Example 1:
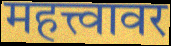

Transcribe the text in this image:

महत्त्वावर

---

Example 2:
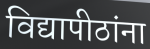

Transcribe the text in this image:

विद्यापीठांना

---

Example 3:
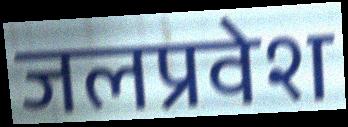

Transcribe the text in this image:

जलप्रवेश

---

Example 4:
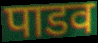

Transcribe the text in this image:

पाडव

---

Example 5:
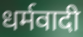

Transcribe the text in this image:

धर्मवादी